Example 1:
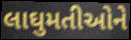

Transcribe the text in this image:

લાઘુમતીઓને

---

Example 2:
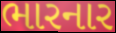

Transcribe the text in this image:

ભારનાર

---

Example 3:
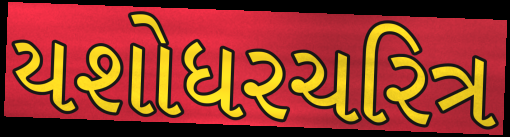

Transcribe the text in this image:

યશોધરચરિત્ર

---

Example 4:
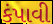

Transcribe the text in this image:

કંપાવી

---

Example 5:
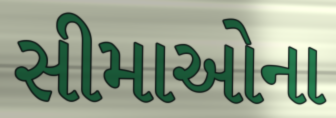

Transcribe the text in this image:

સીમાઓના